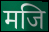
मजि